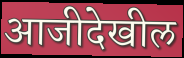
आजीदेखील